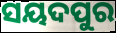
ସୟଦପୁର